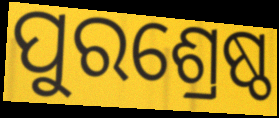
ପୁରଶ୍ରେଷ୍ଠ